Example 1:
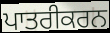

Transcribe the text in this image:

ਪਾਤਰੀਕਰਨ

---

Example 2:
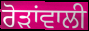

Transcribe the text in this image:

ਰੋੜਾਂਵਾਲੀ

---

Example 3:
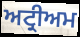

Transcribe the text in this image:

ਅਟ੍ਰੀਅਮ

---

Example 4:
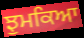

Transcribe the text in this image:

ਝੁਮਕਿਆ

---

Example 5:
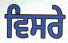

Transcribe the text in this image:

ਵਿਸਰੇ